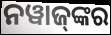
ନୱାଜ୍‍ଙ୍କର